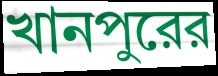
খানপুরের